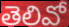
తెలివో